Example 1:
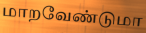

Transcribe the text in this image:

மாறவேண்டுமா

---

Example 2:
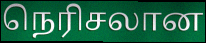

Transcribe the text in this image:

நெரிசலான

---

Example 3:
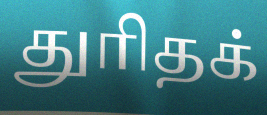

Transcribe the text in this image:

துரிதக்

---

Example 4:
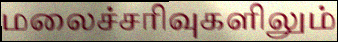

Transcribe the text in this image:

மலைச்சரிவுகளிலும்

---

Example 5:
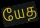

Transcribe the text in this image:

யேத